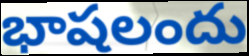
భాషలందు